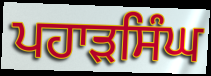
ਪਹਾੜਸਿੰਘ